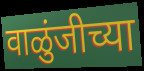
वाळुंजीच्या